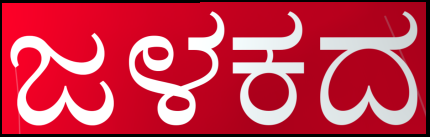
ಜಳಕದ